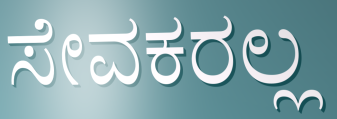
ಸೇವಕರಲ್ಲ